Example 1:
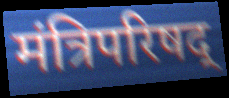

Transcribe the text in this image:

मंत्रिपरिषद्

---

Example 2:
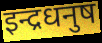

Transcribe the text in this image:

इन्‍द्रधनुष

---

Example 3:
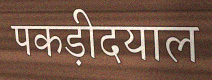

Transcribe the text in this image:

पकड़ीदयाल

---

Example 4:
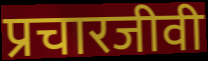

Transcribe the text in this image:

प्रचारजीवी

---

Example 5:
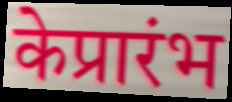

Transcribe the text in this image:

केप्रारंभ